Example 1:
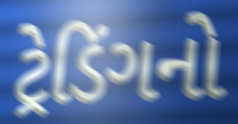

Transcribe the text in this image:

ટ્રેડિંગનો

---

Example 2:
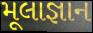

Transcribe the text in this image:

મૂલાજ્ઞાન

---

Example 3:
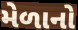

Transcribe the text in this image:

મેળાનો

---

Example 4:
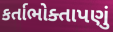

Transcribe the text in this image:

કર્તાભોક્તાપણું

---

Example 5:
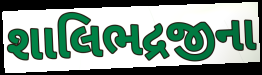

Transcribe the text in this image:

શાલિભદ્રજીના